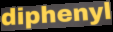
diphenyl